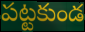
పట్టకుండ